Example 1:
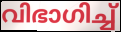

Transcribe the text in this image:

വിഭാഗിച്ച്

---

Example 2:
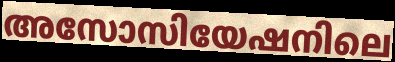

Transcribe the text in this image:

അസോസിയേഷനിലെ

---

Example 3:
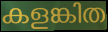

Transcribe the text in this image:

കളങ്കിത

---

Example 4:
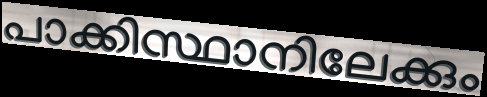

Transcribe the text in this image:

പാക്കിസ്ഥാനിലേക്കും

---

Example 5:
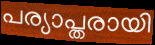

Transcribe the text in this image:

പര്യാപ്തരായി